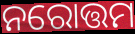
ନରୋତ୍ତମ